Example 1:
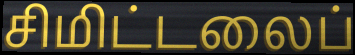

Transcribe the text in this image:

சிமிட்டலைப்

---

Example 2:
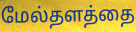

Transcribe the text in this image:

மேல்தளத்தை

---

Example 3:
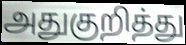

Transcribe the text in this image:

அதுகுறித்து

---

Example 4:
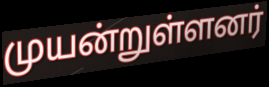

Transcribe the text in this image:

முயன்றுள்ளனர்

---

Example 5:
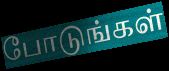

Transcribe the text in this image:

போடுங்கள்